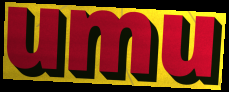
umu